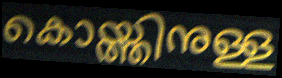
കൊയ്ത്തിനുള്ള